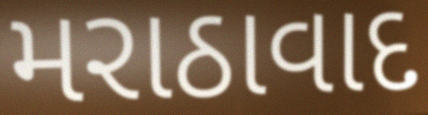
મરાઠાવાદ